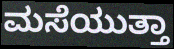
ಮಸೆಯುತ್ತಾ